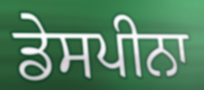
ਡੇਸਪੀਨਾ